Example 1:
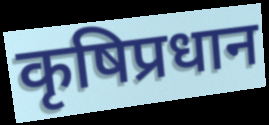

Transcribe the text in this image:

कृषिप्रधान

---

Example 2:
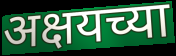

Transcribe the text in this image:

अक्षयच्या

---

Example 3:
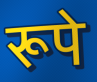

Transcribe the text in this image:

रूपे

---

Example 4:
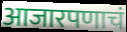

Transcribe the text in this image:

आजारपणाचं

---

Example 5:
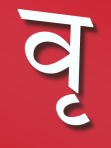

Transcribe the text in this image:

वृ